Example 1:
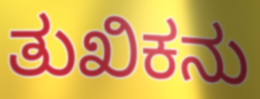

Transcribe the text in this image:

ತುಖಿಕನು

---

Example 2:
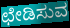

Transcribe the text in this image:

ಛೇಡಿಸುವ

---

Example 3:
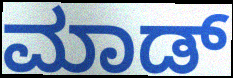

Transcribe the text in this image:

ಮಾಡ್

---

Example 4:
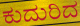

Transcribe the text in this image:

ಕುದುರಿದ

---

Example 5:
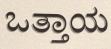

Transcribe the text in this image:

ಒತ್ತಾಯ